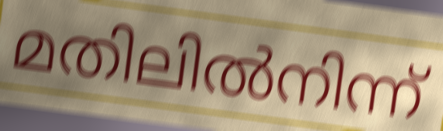
മതിലിൽനിന്ന്